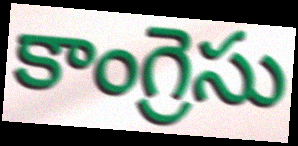
కాంగ్రెసు